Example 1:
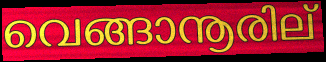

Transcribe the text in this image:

വെങ്ങാനൂരില്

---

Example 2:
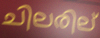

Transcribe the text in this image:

ചിലരില്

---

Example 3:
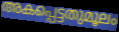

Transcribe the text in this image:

അകപ്പെട്ടതുമൂലം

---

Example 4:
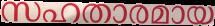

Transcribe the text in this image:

സഹതാരമായ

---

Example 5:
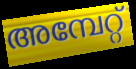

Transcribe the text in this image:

അമ്പേറ്റ്